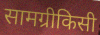
सामग्रीकिसी